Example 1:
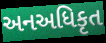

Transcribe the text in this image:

અનઅધિકૃત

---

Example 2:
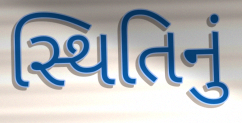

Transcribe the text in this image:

સ્થિતિનું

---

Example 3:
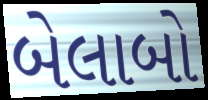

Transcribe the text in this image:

બેલાબો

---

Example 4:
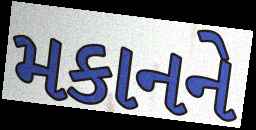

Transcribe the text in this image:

મકાનને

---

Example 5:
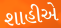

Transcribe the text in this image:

શાહીએ